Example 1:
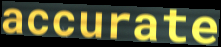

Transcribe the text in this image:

accurate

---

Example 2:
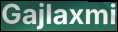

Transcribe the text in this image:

Gajlaxmi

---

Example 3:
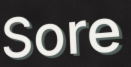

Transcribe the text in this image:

Sore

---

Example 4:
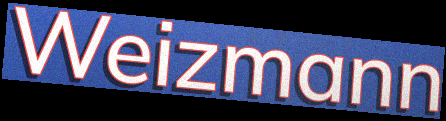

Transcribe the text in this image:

Weizmann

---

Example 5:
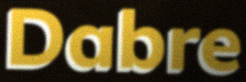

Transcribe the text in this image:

Dabre